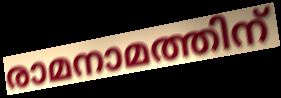
രാമനാമത്തിന്